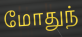
மோதுந்